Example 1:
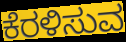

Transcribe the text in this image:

ಕೆರಳಿಸುವ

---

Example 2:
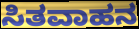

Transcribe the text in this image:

ಸಿತವಾಹನ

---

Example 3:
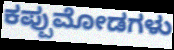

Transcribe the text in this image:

ಕಪ್ಪುಮೋಡಗಳು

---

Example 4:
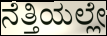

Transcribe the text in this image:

ನೆತ್ತಿಯಲ್ಲೇ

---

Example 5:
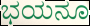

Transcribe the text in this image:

ಭಯನೂ